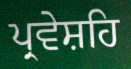
ਪ੍ਰਵੇਸ਼ਹਿ